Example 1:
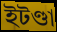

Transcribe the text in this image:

ইটণ্ডা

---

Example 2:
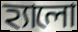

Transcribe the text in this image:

হ্যালো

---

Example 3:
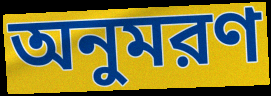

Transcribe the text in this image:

অনুমরণ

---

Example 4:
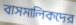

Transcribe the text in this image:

বাসমালিকদের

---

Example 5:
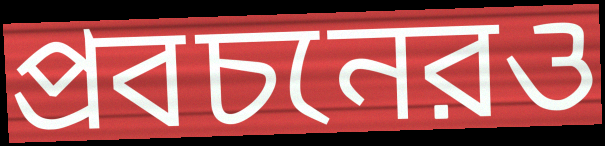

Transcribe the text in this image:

প্রবচনেরও